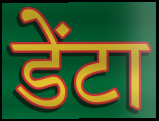
डेंटा